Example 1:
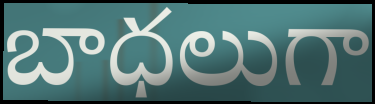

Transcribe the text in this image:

బాధలుగా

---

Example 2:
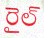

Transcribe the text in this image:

రైల్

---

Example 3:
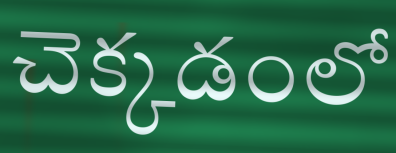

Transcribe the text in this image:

చెక్కడంలో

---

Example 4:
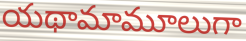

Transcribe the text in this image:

యథామామూలుగా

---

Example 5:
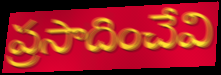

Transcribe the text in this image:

ప్రసాదించేవి